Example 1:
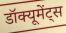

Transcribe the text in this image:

डॉक्यूमेंट्स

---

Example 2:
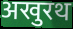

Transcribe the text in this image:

अखुरथ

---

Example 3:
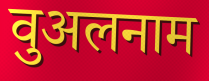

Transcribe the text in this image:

वुअलनाम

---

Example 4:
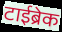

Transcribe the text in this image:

टाईब्रेक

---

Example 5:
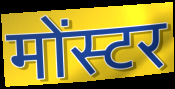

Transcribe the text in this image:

मोंस्टर